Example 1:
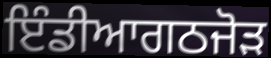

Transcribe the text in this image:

ਇੰਡੀਆਗਠਜੋੜ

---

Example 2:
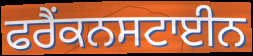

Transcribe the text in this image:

ਫਰੈਂਕਨਸਟਾਈਨ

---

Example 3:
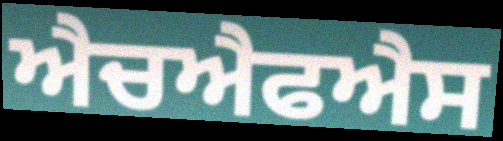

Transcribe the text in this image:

ਐਚਐਫਐਸ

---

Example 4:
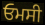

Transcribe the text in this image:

ਓਮਸੀ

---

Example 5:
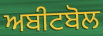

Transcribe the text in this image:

ਅਬੀਟਬੋਲ